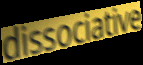
dissociative